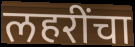
लहरींचा